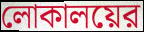
লোকালয়ের